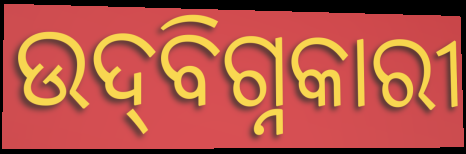
ଉଦ୍‌ବିଗ୍ନକାରୀ